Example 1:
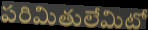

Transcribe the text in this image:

పరిమితులేమిటో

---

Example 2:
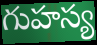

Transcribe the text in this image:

గుహస్య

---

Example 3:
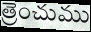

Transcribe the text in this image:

త్రెంచుము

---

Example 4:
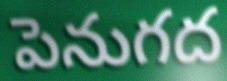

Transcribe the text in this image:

పెనుగద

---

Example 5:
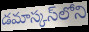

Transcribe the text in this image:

డమాస్కస్‌లోని